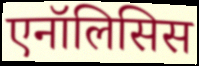
एनॉलिसिस